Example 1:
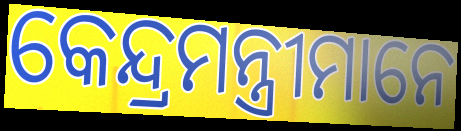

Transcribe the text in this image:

କେନ୍ଦ୍ରମନ୍ତ୍ରୀମାନେ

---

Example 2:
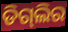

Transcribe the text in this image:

ଡିଗ୍‌ଲିର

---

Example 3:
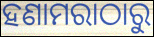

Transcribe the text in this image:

ହଣାମରାଠାରୁ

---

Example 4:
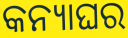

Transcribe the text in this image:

କନ୍ୟାଘର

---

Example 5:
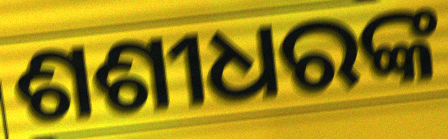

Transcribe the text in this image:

ଶଶୀଧରଙ୍କ